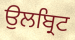
ਉਲਬ੍ਰਿਟ